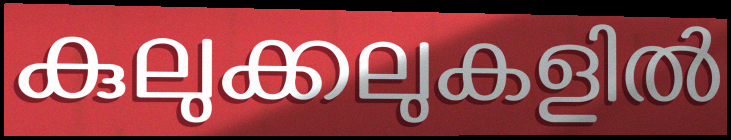
കുലുക്കലുകളിൽ